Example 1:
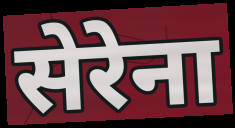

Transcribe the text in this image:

सेरेना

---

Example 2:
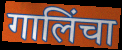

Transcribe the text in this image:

गालिंचा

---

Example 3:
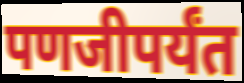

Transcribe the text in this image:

पणजीपर्यंत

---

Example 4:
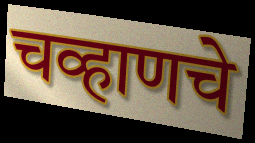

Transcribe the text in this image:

चव्हाणचे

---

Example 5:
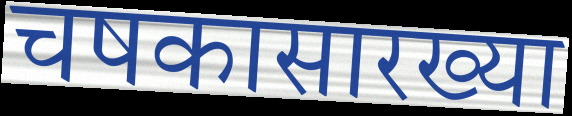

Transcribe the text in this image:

चषकासारख्या